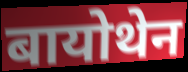
बायोथेन